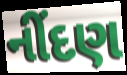
નીંદણ